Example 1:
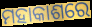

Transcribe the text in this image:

ମହାକାଶରେ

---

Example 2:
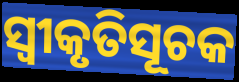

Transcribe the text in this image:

ସ୍ଵୀକୃତିସୂଚକ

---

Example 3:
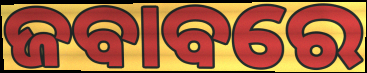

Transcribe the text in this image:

ଜବାବରେ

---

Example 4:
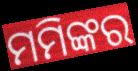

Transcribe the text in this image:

ମମିଙ୍କର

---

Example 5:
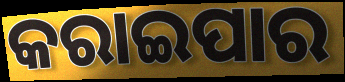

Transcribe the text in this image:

କରାଇପାର